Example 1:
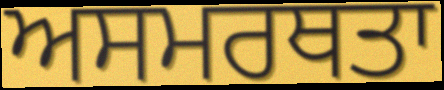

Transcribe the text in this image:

ਅਸਮਰਥਤਾ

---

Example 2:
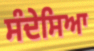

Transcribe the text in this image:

ਸੰਦੇਸਿਆ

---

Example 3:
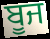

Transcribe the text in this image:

ਬੂਜ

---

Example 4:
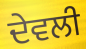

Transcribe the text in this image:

ਦੇਵਲੀ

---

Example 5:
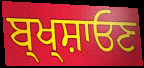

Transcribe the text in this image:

ਬ੍ਖ੍ਸ਼ਾਓਣ